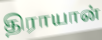
திராயான்